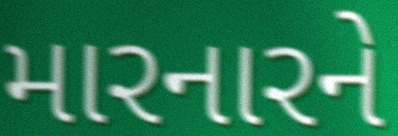
મારનારને